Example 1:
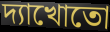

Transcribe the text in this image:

দ্যাখোতো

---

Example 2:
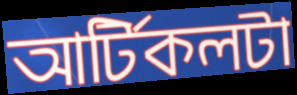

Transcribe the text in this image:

আর্টিকলটা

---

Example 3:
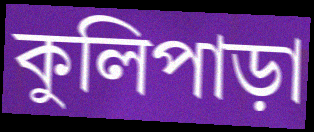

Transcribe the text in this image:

কুলিপাড়া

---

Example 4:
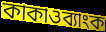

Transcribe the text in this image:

কাকাওব্যাংক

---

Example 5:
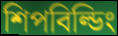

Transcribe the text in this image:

শিপবিল্ডিং